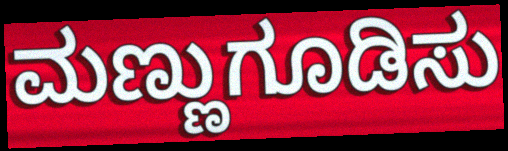
ಮಣ್ಣುಗೂಡಿಸು